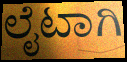
ಲೈಟಾಗಿ